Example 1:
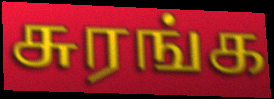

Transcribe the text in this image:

சுரங்க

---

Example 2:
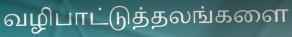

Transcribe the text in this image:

வழிபாட்டுத்தலங்களை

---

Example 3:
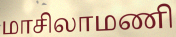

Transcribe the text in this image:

மாசிலாமணி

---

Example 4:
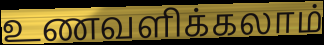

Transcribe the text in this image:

உணவளிக்கலாம்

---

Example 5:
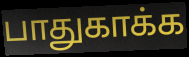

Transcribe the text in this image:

பாதுகாக்க